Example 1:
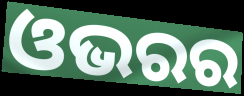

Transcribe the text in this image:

ଓଭରର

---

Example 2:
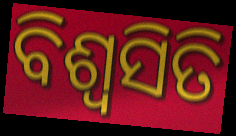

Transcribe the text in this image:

ବିଶ୍ଵସିତି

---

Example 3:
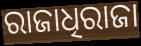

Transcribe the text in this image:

ରାଜାଧିରାଜା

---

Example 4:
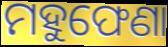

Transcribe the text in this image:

ମହୁଫେଣା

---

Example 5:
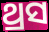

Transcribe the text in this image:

ଥ୍ରସ